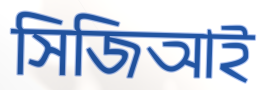
সিজিআই